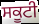
ਸਕੂਟੀ